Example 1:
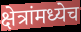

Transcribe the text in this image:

क्षेत्रांमध्येच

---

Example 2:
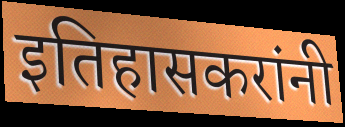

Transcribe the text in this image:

इतिहासकरांनी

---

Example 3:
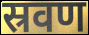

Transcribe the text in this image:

स्रवण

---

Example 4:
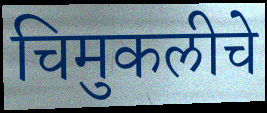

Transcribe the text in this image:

चिमुकलीचे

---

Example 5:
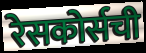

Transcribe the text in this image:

रेसकोर्सची